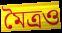
মৈত্রও